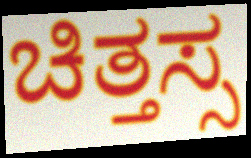
ಚಿತ್ತಸ್ಸ